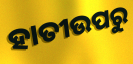
ହାତୀଉପରୁ